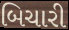
બિચારી